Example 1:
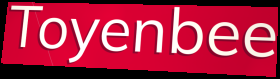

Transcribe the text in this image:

Toyenbee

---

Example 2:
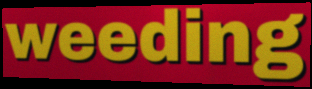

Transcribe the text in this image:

weeding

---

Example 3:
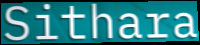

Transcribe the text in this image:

Sithara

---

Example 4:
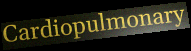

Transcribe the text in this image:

Cardiopulmonary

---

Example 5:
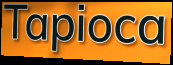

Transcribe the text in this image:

Tapioca